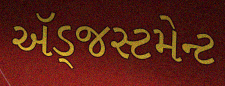
ઍડ્જસ્ટમેન્ટ